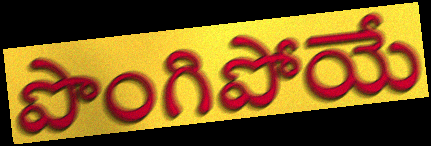
పొంగిపోయే